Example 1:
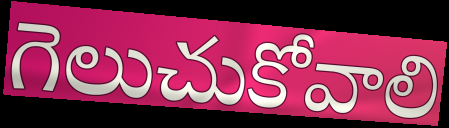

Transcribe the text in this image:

గెలుచుకోవాలి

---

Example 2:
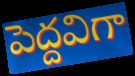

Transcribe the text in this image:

పెద్దవిగా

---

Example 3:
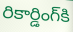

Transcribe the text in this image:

రికార్డింగ్‌కి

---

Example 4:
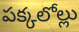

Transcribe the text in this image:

పక్కలోల్లు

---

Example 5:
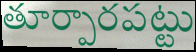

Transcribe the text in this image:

తూర్పారపట్టు